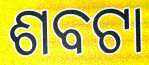
ଶବଟା